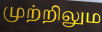
முற்றிலும